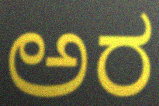
ಅರ